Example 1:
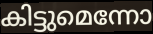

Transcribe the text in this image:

കിട്ടുമെന്നോ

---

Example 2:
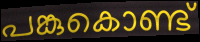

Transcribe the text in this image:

പങ്കുകൊണ്ട്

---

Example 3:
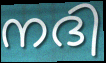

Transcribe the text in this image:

നദി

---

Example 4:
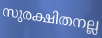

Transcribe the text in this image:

സുരക്ഷിതനല്ല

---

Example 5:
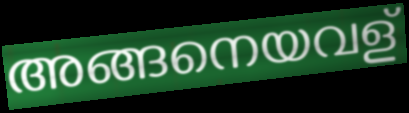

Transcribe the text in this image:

അങ്ങനെയവള്